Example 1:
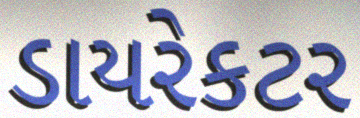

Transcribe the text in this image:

ડાયરેકટર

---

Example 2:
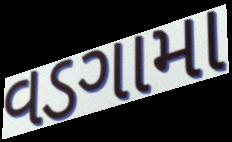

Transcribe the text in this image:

વડગામા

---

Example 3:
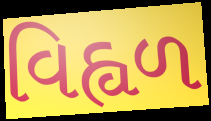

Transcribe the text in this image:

વિહ્વળ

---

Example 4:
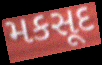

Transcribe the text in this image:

મકસૂદ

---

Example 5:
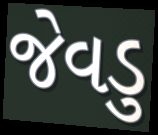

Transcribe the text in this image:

જેવડુ